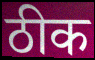
ठीक